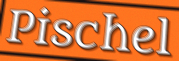
Pischel